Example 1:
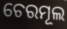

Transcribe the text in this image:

ଚେରମୂଲ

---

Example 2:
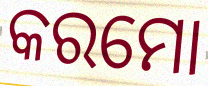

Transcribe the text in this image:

କରମୋ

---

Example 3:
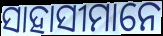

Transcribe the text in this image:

ସାହାସୀମାନେ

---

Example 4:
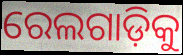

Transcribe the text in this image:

ରେଲଗାଡ଼ିକୁ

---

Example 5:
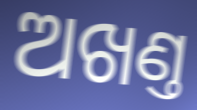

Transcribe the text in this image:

ଅଖଣ୍ତ